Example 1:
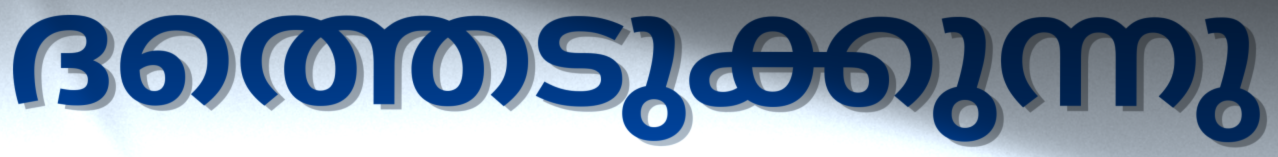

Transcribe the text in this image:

ദത്തെടുക്കുന്നു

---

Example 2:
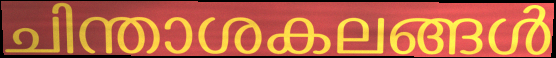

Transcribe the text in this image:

ചിന്താശകലങ്ങൾ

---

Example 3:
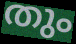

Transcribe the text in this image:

തും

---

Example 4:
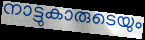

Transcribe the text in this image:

നാട്ടുകാരുടെയും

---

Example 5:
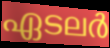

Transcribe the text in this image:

ഏടലർ